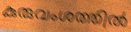
കുരുവംശത്തിൽ